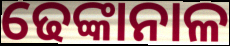
ଢେଙ୍କାନାଳ